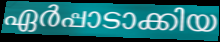
ഏർപ്പാടാക്കിയ